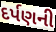
દર્પણની